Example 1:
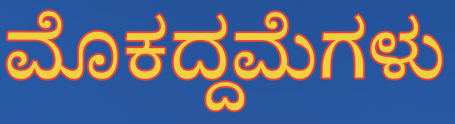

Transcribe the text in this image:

ಮೊಕದ್ದಮೆಗಳು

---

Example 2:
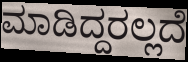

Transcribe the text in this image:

ಮಾಡಿದ್ದರಲ್ಲದೆ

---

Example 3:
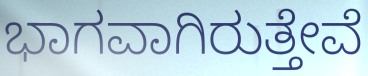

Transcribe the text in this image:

ಭಾಗವಾಗಿರುತ್ತೇವೆ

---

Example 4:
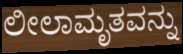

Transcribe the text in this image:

ಲೀಲಾಮೃತವನ್ನು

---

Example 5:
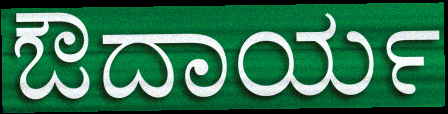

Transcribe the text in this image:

ಔದಾರ್ಯ